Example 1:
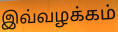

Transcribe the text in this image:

இவ்வழக்கம்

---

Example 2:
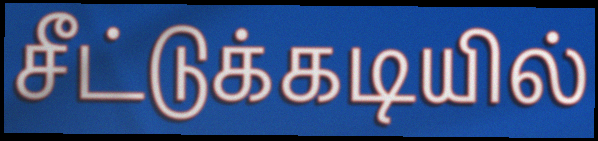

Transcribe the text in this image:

சீட்டுக்கடியில்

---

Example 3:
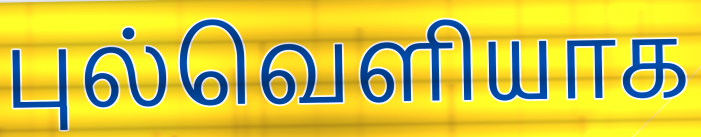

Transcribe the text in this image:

புல்வெளியாக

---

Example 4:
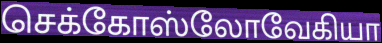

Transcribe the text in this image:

செக்கோஸ்லோவேகியா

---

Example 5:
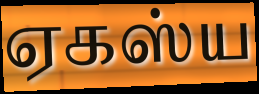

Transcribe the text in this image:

ஏகஸ்ய